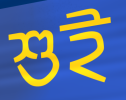
শুই